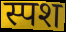
स्पश